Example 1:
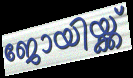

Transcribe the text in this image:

ജോയിയ്ക്ക്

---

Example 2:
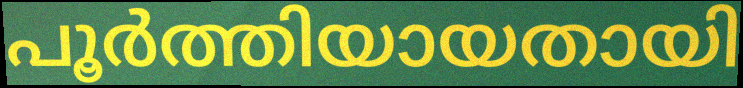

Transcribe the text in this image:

പൂർത്തിയായതായി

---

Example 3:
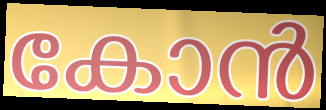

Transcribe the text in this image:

കോൻ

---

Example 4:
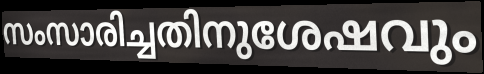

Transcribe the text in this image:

സംസാരിച്ചതിനുശേഷവും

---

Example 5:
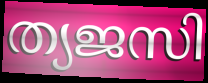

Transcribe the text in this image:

ത്യജസി